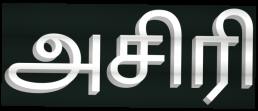
அசிரி